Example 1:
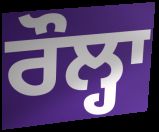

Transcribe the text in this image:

ਰੌਲ੍ਹਾ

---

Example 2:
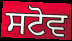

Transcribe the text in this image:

ਸਟੋਵ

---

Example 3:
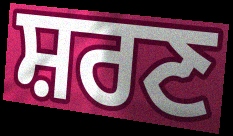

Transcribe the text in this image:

ਸ਼ਰਣ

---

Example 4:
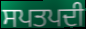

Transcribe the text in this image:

ਸਪਤਪਦੀ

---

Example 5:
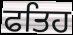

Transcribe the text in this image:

ਫਤਿਹ